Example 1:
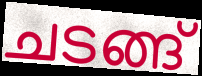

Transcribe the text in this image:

ചടങ്ങ്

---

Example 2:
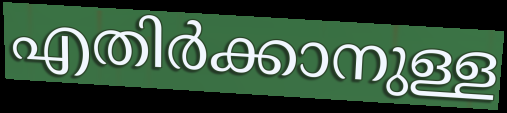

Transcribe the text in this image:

എതിർക്കാനുള്ള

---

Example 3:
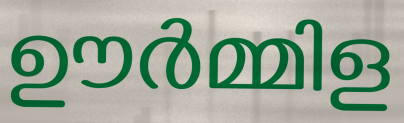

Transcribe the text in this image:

ഊർമ്മിള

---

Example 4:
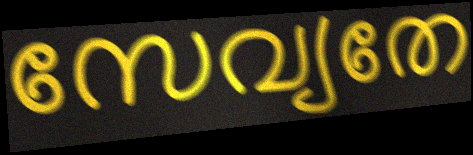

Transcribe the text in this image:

സേവ്യതേ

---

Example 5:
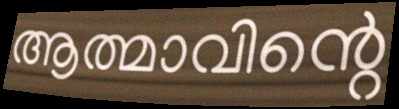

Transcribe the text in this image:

ആത്മാവിന്റെ